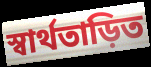
স্বার্থতাড়িত